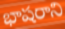
భాషరాని